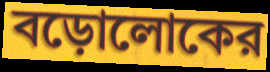
বড়োলোকের